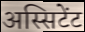
अस्सिटेंट